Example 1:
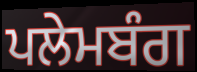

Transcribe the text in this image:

ਪਲੇਮਬੰਗ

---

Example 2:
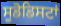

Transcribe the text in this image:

ਸੂਡੋਡਿਸਟਾਂ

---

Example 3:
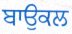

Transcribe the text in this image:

ਬਾਉਕਲ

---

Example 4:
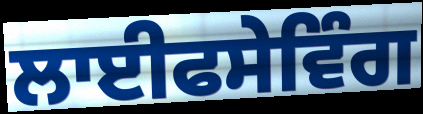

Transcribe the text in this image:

ਲਾਈਫਸੇਵਿੰਗ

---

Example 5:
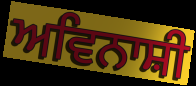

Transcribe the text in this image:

ਅਵਿਨਾਸ਼ੀ